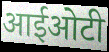
आईओटी